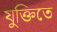
যুক্তিতে